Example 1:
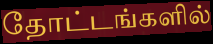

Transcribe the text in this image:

தோட்டங்களில்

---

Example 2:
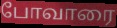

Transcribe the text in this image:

போவாரை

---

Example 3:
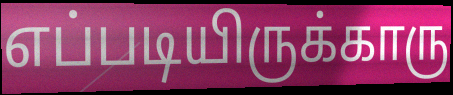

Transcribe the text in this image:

எப்படியிருக்காரு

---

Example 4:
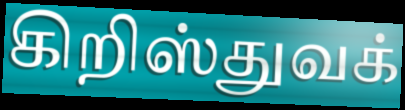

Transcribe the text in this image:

கிறிஸ்துவக்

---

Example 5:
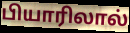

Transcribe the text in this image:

பியாரிலால்